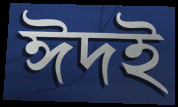
ঈদই